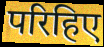
परिहिए